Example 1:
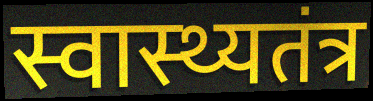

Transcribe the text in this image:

स्वास्थ्यतंत्र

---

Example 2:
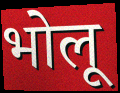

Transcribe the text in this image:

भोलू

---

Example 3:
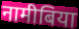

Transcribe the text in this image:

नामीबिया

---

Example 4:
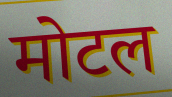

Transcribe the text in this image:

मोटल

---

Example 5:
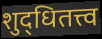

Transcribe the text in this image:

शुद्धितत्त्व